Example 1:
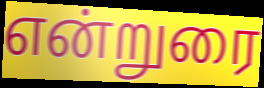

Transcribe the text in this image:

என்றுரை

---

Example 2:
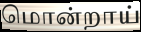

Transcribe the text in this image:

மொன்றாய்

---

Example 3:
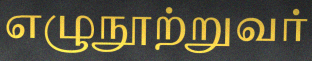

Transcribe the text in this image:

எழுநூற்றுவர்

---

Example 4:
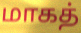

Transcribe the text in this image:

மாகத்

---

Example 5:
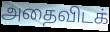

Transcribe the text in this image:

அதைவிடக்